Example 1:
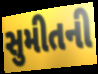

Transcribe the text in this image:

સુમીતની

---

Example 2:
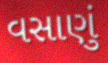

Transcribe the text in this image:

વસાણું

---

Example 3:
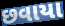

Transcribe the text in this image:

છવાયા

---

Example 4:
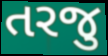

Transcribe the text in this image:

તરજુ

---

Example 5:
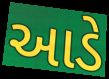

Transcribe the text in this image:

આડે